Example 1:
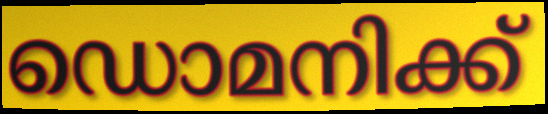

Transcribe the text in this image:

ഡൊമനിക്ക്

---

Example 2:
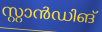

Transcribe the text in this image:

സ്റ്റാൻഡിങ്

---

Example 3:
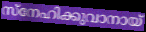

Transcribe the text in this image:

സ്നേഹിക്കുവാനായ്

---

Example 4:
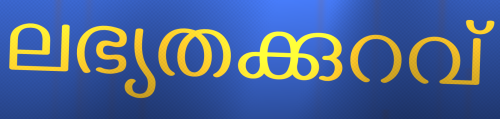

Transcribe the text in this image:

ലഭ്യതക്കുറവ്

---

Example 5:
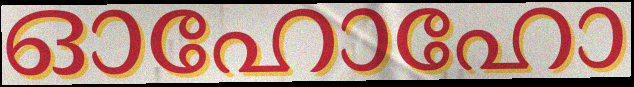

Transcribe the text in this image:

ഓഹോഹോ